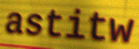
astitw